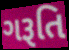
ગરૂતિ